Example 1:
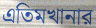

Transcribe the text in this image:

এতিমখানার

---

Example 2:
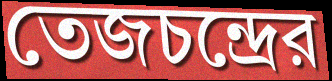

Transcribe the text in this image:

তেজচন্দ্রের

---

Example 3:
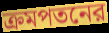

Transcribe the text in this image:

ক্রমপতনের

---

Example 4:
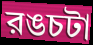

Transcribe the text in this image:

রঙচটা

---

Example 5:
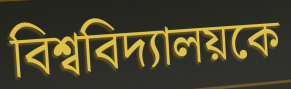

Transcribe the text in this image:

বিশ্ববিদ্যালয়কে